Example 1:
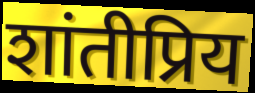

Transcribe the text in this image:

शांतीप्रिय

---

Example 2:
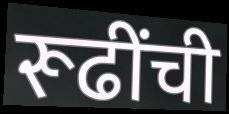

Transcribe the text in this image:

रूढींची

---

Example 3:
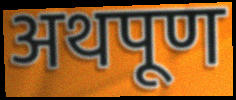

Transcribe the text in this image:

अथपूण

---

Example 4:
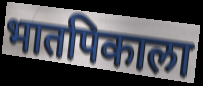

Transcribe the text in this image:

भातपिकाला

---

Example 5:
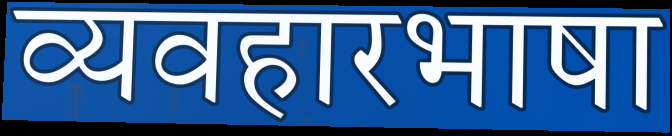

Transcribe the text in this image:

व्यवहारभाषा